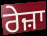
ਰੇਜ਼ਾ